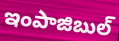
ఇంపాజిబుల్